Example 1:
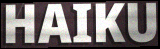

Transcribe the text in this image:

HAIKU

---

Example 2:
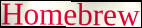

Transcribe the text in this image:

Homebrew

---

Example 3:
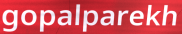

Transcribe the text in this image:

gopalparekh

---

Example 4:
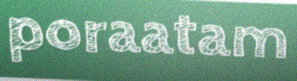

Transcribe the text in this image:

poraatam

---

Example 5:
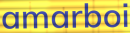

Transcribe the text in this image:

amarboi